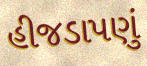
હીજડાપણું